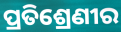
ପ୍ରତିଶ୍ରେଣୀର